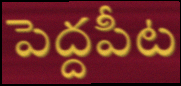
పెద్దపీట